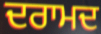
ਦਰਾਮਦ